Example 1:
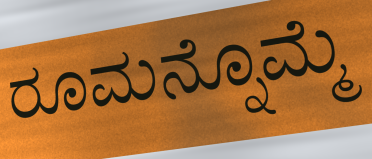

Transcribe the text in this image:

ರೂಮನ್ನೊಮ್ಮೆ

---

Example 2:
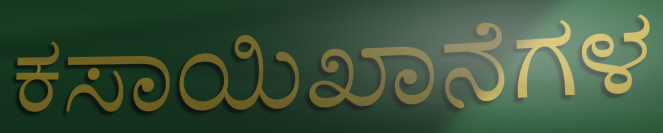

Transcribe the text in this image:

ಕಸಾಯಿಖಾನೆಗಳ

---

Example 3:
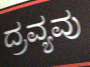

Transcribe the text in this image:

ದ್ರವ್ಯವು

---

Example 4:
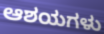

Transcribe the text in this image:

ಆಶಯಗಳು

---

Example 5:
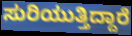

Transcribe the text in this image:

ಸುರಿಯುತ್ತಿದ್ದಾರೆ